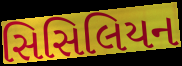
સિસિલિયન